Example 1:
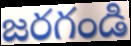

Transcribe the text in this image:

జరగండి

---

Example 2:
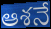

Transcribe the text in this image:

ఆశనే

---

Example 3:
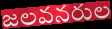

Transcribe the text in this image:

జలవనరుల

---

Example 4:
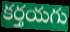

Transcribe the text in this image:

కర్తయగు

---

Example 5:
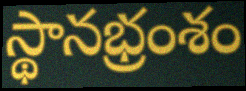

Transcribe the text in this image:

స్థానభ్రంశం